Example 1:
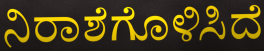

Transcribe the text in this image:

ನಿರಾಶೆಗೊಳಿಸಿದೆ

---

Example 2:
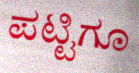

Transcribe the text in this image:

ಪಟ್ಟಿಗೂ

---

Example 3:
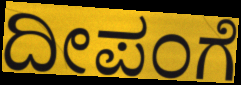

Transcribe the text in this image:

ದೀಪಂಗೆ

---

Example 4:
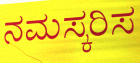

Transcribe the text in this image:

ನಮಸ್ಕರಿಸ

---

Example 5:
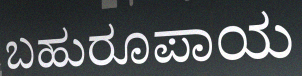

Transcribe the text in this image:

ಬಹುರೂಪಾಯ